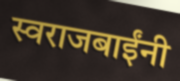
स्वराजबाईंनी